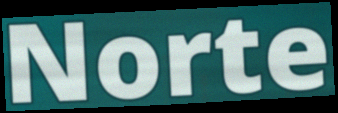
Norte